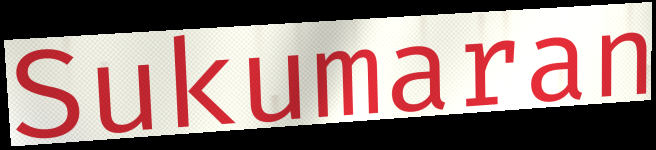
Sukumaran